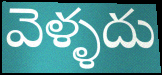
వెళ్ళదు